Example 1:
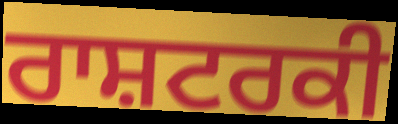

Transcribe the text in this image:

ਰਾਸ਼ਟਰਕੀ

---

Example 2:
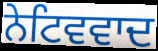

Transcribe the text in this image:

ਨੇਟਿਵਵਾਦ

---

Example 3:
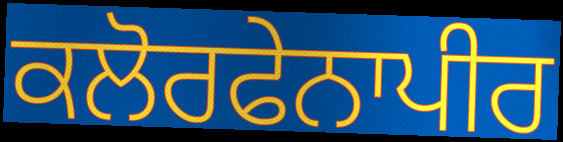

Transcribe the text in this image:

ਕਲੋਰਫੇਨਾਪੀਰ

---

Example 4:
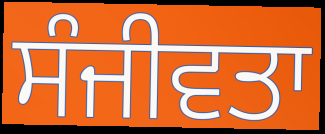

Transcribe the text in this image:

ਸੰਜੀਵਤਾ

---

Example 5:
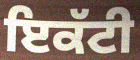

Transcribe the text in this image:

ਇਕੱਟੀ